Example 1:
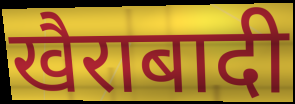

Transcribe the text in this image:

खैराबादी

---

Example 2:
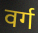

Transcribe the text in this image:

वर्ग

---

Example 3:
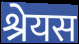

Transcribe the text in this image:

श्रेयस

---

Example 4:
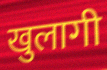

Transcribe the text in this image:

खुलागी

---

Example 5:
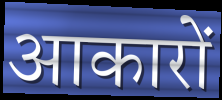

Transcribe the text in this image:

आकारों